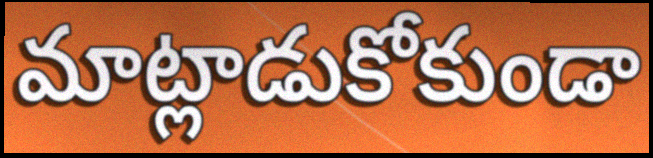
మాట్లాడుకోకుండా